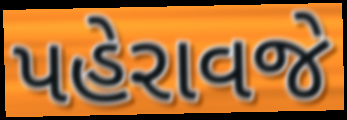
પહેરાવજે